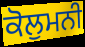
ਕੋਲੁਮਨੀ